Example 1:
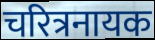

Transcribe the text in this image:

चरित्रनायक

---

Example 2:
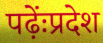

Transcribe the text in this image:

पढ़ेंःप्रदेश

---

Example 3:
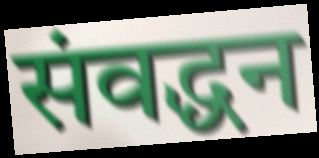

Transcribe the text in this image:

संवद्धन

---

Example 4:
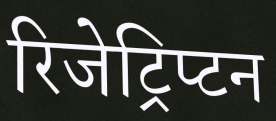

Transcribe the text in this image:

रिजेट्रिप्टन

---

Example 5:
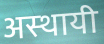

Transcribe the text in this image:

अस्थायी